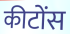
कीटोंस